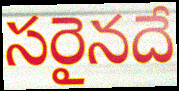
సరైనదే